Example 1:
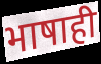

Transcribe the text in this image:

भाषाही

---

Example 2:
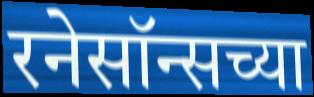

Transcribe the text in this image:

रनेसॉन्सच्या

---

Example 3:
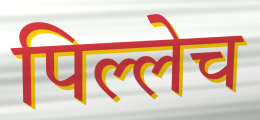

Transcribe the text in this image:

पिल्लेच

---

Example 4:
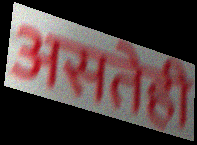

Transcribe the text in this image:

असतेही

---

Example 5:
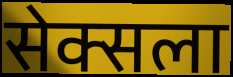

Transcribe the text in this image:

सेक्सला